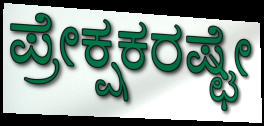
ಪ್ರೇಕ್ಷಕರಷ್ಟೇ